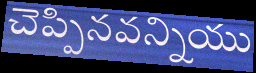
చెప్పినవన్నియు